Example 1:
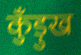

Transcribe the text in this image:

कुँड़ुख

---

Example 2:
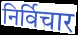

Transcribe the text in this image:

निर्विचार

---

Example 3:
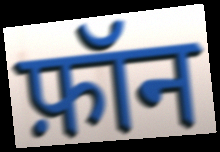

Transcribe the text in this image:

फ़ॉन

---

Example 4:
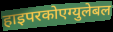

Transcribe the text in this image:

हाइपरकोएग्युलेबल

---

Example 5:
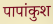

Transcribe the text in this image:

पापांकुश